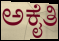
ಅಕೈತಿ